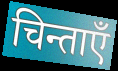
चिन्ताएँ